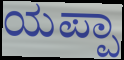
ಯಪ್ಪಾ